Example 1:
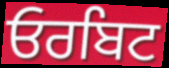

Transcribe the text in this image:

ਓਰਬਿਟ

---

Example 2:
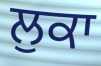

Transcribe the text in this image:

ਲੁਕਾ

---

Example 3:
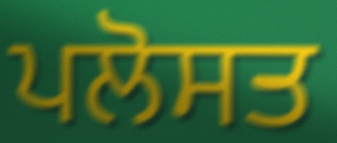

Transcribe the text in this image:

ਪਲੋਸਤ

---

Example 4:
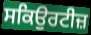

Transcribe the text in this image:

ਸਕਿਉਰਟੀਜ਼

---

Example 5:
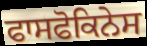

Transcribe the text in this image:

ਫਾਸਫੋਕਿਨੇਸ